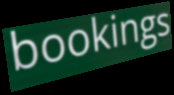
bookings